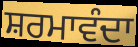
ਸ਼ਰਮਾਵੰਦਾ